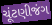
ચૂંટણીજંગ